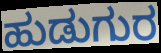
ಹುಡುಗುರ